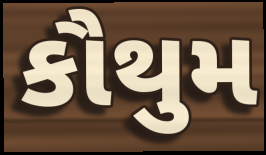
કૌથુમ